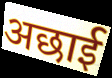
अछाई